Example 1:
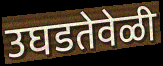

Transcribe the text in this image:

उघडतेवेळी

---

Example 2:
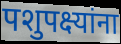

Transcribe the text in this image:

पशुपक्ष्यांना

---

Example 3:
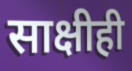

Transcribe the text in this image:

साक्षीही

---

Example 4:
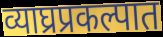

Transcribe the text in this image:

व्याघ्रप्रकल्पात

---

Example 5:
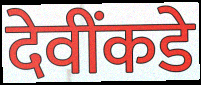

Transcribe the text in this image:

देवींकडे